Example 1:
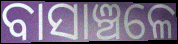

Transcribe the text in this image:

ବାସାଞ୍ଚଳେ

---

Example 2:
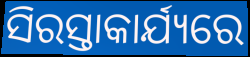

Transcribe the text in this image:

ସିରସ୍ତାକାର୍ଯ୍ୟରେ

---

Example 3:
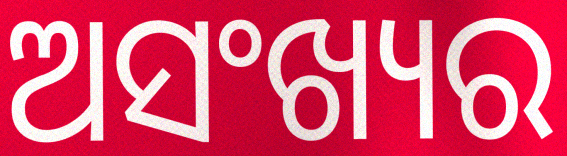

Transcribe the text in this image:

ଅସଂଖ୍ୟର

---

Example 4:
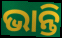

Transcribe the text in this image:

ଭାନ୍ତି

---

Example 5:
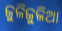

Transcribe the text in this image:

ଜୁଳିଜୁଳିଆ